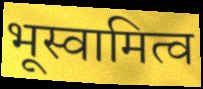
भूस्वामित्व